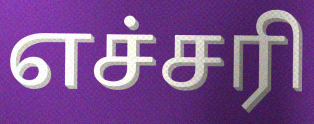
எச்சரி